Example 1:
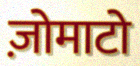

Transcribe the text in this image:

ज़ोमाटो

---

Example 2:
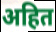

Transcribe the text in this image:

अहित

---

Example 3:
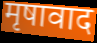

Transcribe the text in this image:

मृषावाद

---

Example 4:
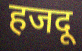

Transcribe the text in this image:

हजदू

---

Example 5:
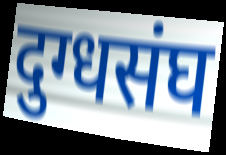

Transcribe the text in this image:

दुग्धसंघ